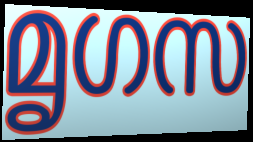
മൃഗസ